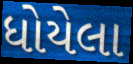
ધોયેલા